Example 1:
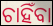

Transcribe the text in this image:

ଚାହିଁବା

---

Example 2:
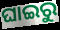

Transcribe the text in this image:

ଘାଇରୁ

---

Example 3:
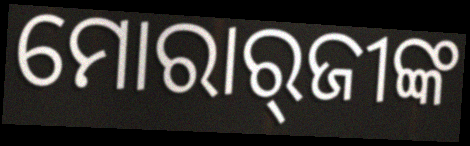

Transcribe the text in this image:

ମୋରାର୍‌ଜୀଙ୍କ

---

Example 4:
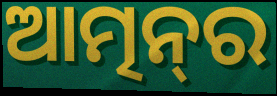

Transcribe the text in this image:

ଆତ୍ମନ୍‌ର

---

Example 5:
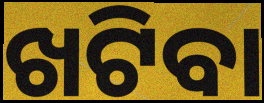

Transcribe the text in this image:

ଖଟିବା